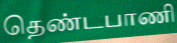
தெண்டபாணி